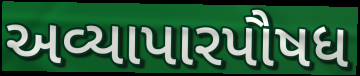
અવ્યાપારપૌષધ